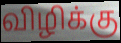
விழிக்கு